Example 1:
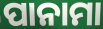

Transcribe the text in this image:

ପାନାମା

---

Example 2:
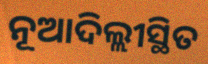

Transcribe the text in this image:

ନୂଆଦିଲ୍ଲୀସ୍ଥିତ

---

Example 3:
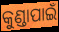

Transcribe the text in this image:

କୁଣ୍ଡାପାଇଁ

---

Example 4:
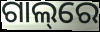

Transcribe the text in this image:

ଗାଲ୍‌ରେ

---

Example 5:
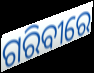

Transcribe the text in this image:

ଗରିବୀରେ